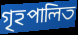
গৃহপালিত